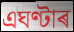
এঘণ্টাৰ